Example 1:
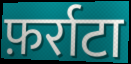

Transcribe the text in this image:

फ़र्राटा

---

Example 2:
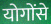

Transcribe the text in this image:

योगोंसे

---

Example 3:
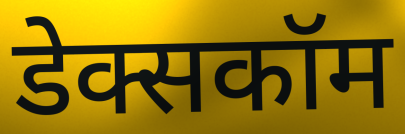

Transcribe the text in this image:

डेक्सकॉम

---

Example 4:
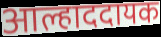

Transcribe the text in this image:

आल्हाददायक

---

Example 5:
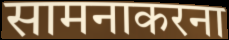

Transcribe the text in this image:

सामनाकरना